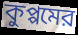
কুপ্পমের